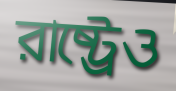
রাষ্ট্রেও